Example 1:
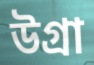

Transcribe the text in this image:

উগ্রা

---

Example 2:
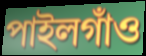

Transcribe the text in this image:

পাইলগাঁও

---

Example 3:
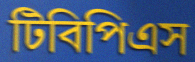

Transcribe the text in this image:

টিবিপিএস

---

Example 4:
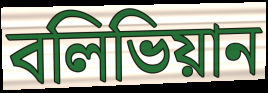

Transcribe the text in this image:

বলিভিয়ান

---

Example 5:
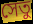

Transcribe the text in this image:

সেতু